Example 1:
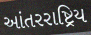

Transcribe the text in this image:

આંતરરાષ્ટ્રિય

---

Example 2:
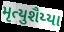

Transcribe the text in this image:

મૃત્યુશૈય્યા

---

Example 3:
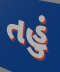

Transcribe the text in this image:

તહું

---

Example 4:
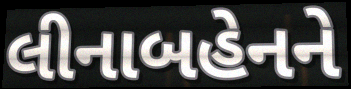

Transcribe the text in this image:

લીનાબહેનને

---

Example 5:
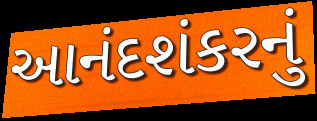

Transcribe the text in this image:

આનંદશંકરનું